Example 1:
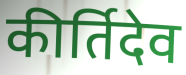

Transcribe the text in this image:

कीर्तिदेव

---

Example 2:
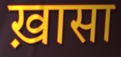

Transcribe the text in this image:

ख़ासा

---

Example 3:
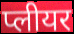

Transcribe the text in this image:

प्लीयर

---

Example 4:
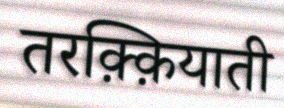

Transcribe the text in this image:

तरक़्क़ियाती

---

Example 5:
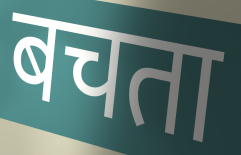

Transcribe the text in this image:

बचता